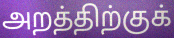
அறத்திற்குக்